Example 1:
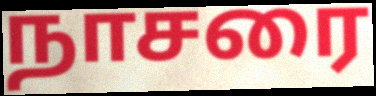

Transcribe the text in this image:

நாசரை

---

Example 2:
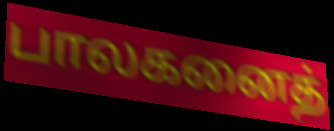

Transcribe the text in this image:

பாலகனைத்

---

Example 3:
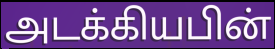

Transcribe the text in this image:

அடக்கியபின்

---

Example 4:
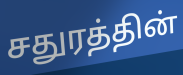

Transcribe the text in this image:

சதுரத்தின்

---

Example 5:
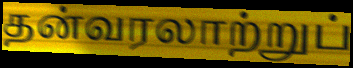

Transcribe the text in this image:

தன்வரலாற்றுப்